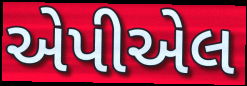
એપીએલ